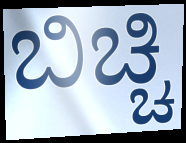
ಬಿಚ್ಚಿ